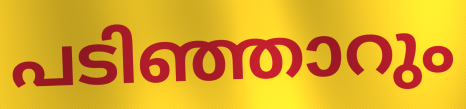
പടിഞ്ഞാറും